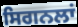
ਸਿਗਨਲਾਂ